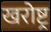
खरोष्ट्र